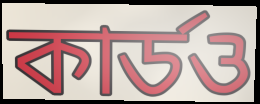
কার্ডও